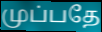
முப்பதே